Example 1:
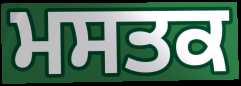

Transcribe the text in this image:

ਮਸਤਕ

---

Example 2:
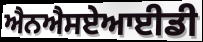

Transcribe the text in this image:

ਐਨਐਸਏਆਈਡੀ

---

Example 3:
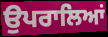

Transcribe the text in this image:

ਉਪਰਾਲਿਆਂ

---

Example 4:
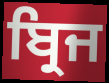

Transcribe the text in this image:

ਬ੍ਰਿਜ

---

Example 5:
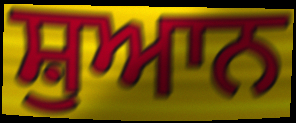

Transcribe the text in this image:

ਸ਼ੁਆਨ